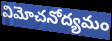
విమోచనోద్యమం